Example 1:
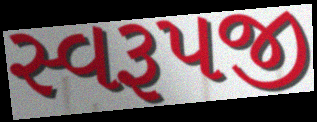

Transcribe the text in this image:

સ્વરૂપજી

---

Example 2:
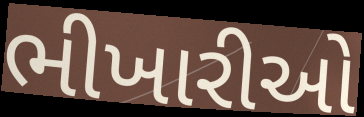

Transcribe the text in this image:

ભીખારીઓ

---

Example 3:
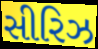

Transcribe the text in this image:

સીરિઝ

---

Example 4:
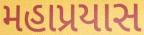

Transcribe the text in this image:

મહાપ્રયાસ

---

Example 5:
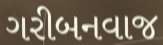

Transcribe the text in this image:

ગરીબનવાજ